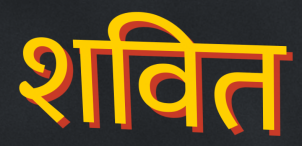
शवित